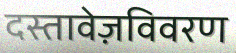
दस्तावेज़विवरण